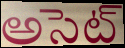
అసెట్